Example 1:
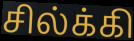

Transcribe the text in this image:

சில்க்கி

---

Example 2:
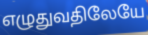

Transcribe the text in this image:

எழுதுவதிலேயே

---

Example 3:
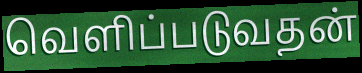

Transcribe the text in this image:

வெளிப்படுவதன்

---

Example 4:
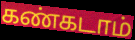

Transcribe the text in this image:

கண்கடாம்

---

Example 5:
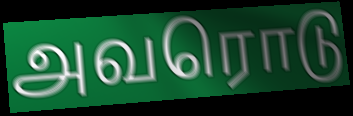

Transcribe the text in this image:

அவரொடு